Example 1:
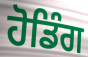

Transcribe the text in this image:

ਹੋਡਿੰਗ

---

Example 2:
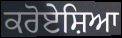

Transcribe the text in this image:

ਕਰੋਏਸ਼ਿਆ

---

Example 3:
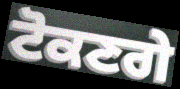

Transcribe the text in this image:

ਟੋਕਣਗੇ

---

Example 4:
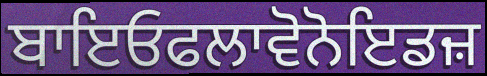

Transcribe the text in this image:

ਬਾਇਓਫਲਾਵੋਨੋਇਡਜ਼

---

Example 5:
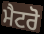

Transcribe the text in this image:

ਮੈਟਰੋ